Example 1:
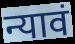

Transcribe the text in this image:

न्यावं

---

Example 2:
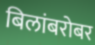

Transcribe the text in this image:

बिलांबरोबर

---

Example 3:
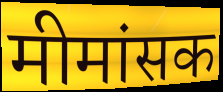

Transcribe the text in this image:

मीमांसक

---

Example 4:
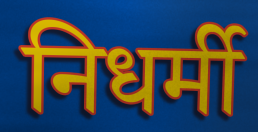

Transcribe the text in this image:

निधर्मी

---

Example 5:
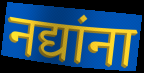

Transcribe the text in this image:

नद्यांना